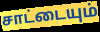
சாட்டையும்